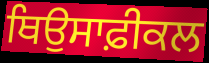
ਥਿਉਸਾਫ਼ੀਕਲ